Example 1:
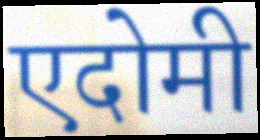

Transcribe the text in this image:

एदोमी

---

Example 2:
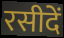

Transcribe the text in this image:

रसीदें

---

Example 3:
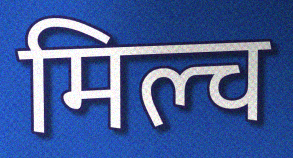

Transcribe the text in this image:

मिल्च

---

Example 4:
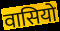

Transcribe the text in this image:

वासियो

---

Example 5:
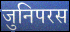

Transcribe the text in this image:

जुनिपरस